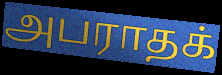
அபராதக்